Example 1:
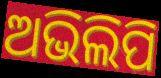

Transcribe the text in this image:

ଅଭିଲିପି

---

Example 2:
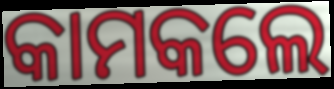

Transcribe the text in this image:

କାମକଲେ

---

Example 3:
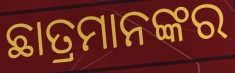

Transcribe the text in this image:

ଛାତ୍ରମାନଙ୍କର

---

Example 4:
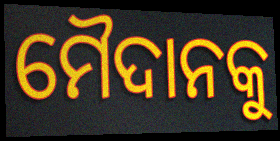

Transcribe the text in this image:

ମୈଦାନକୁ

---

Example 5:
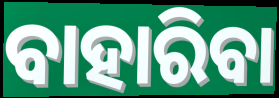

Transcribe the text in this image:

ବାହାରିବା